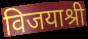
विजयाश्री